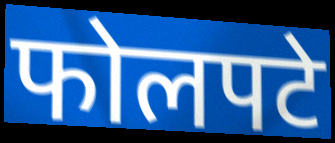
फोलपटे